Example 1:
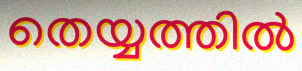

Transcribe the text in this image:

തെയ്യത്തിൽ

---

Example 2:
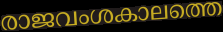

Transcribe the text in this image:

രാജവംശകാലത്തെ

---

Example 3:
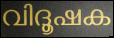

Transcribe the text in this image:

വിദൂഷക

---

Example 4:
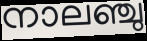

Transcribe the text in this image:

നാലഞ്ചു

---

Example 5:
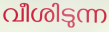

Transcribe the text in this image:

വീശിടുന്ന